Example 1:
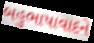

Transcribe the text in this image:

બહુભાષાવાદને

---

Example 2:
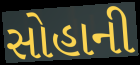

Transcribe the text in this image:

સોહાની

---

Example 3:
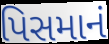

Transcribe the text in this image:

પિસમાનં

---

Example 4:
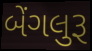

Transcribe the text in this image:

બેંગલુરૂ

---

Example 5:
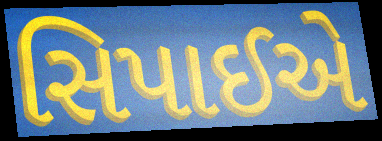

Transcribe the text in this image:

સિપાઈએ